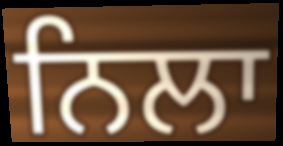
ਨਿਲਾ